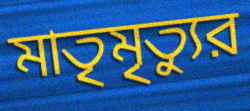
মাতৃমৃত্যুর